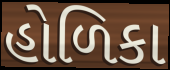
હોળિકા